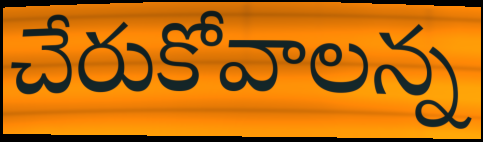
చేరుకోవాలన్న